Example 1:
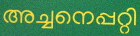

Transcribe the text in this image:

അച്ചനെപ്പറ്റി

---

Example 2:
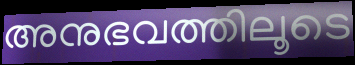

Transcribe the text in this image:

അനുഭവത്തിലൂടെ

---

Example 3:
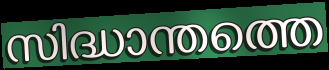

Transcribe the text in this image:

സിദ്ധാന്തത്തെ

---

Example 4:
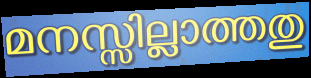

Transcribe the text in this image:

മനസ്സില്ലാത്തതു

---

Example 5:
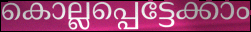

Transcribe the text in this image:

കൊല്ലപ്പെട്ടേക്കാം